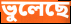
ভুলেছে